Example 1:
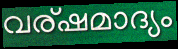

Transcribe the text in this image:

വര്ഷമാദ്യം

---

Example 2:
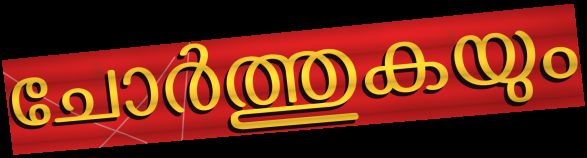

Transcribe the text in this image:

ചോർത്തുകയും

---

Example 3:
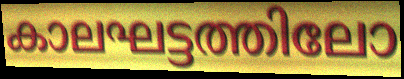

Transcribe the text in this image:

കാലഘട്ടത്തിലോ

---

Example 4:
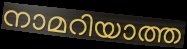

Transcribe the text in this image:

നാമറിയാത്ത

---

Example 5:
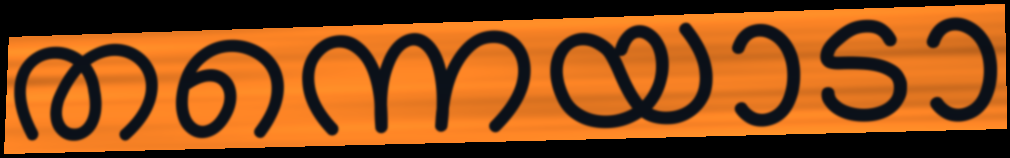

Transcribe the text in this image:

തന്നെയാടാ